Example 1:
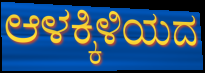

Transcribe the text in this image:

ಆಳಕ್ಕಿಳಿಯದ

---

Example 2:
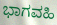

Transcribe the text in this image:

ಭಾಗವಹಿ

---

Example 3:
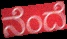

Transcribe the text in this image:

ನೆಂದೆ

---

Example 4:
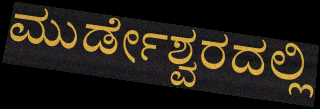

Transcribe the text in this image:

ಮುರ್ಡೇಶ್ವರದಲ್ಲಿ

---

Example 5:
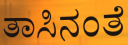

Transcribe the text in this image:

ತಾಸಿನಂತೆ